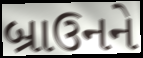
બ્રાઉનને